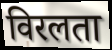
विरलता